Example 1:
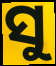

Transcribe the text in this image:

ସୁ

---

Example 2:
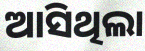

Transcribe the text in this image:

ଆସିଥିଲା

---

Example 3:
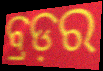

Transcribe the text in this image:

ବ୍ରଡ଼ର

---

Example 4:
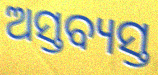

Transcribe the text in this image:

ଅସ୍ତବ୍ୟସ୍ତ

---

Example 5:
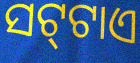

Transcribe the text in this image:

ସଟ୍‍ଟାଏ